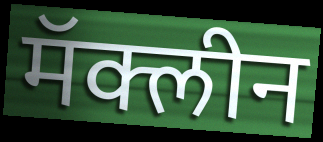
मॅक्लीन